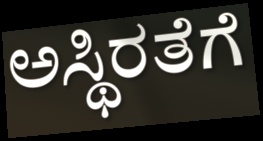
ಅಸ್ಥಿರತೆಗೆ